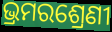
ଭ୍ରମରଶ୍ରେଣୀ